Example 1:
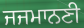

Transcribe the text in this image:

ਜਜਮਾਨਣੀ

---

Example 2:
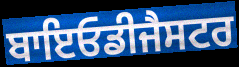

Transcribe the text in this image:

ਬਾਇਓਡੀਜੈਸਟਰ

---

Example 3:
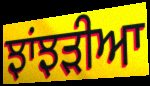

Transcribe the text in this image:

ਝਾਂਝੜੀਆ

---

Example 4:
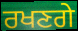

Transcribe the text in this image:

ਰਖਣਗੇ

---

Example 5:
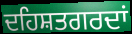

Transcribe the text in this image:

ਦਹਿਸ਼ਤਗਰਦਾਂ